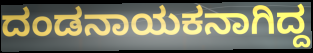
ದಂಡನಾಯಕನಾಗಿದ್ದ